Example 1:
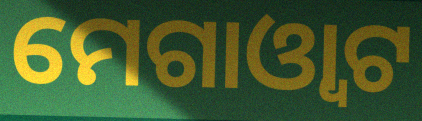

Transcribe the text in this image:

ମେଗାଓ୍ୱାଟ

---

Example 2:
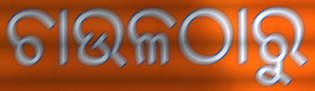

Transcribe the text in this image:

ଚାଉଳଠାରୁ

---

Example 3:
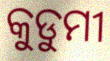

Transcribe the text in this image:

କୁଡୁମୀ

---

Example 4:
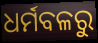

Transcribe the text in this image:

ଧର୍ମବଳରୁ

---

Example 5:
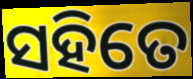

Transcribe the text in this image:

ସହିତେ